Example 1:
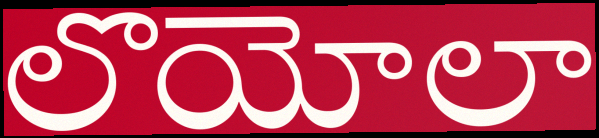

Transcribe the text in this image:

లొయోలా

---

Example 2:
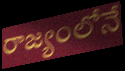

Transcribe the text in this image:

రాజ్యంలోనే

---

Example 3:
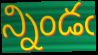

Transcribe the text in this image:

న్నిండఁ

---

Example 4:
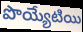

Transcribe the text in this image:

పొయ్యేటియి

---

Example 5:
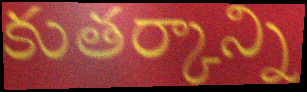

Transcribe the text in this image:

కుతర్కాన్ని